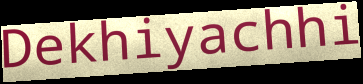
Dekhiyachhi